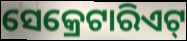
ସେକ୍ରେଟାରିଏଟ୍